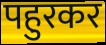
पहुरकर